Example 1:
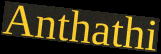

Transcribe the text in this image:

Anthathi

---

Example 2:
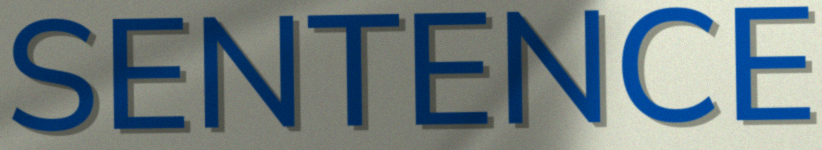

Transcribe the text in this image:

SENTENCE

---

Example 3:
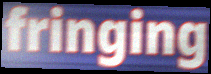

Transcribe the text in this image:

fringing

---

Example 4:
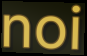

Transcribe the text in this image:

noi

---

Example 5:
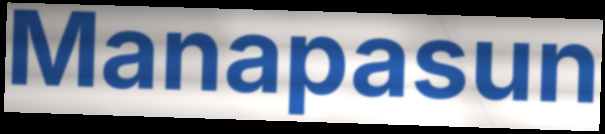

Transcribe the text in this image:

Manapasun